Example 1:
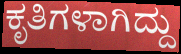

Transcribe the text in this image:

ಕೃತಿಗಳಾಗಿದ್ದು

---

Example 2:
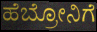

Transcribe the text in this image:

ಹೆಬ್ರೋನಿಗೆ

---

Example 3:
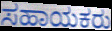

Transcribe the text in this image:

ಸಹಾಯಕರು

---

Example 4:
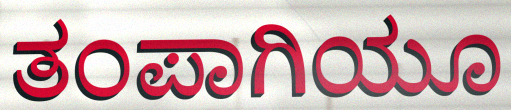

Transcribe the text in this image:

ತಂಪಾಗಿಯೂ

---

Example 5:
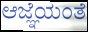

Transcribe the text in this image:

ಆಜ್ಞೆಯಂತೆ